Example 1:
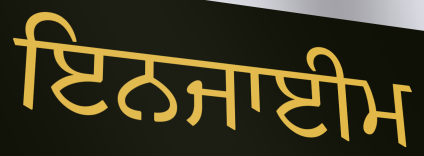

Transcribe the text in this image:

ਇਨਜਾਈਮ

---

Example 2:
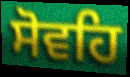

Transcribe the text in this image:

ਸੋਵਹਿ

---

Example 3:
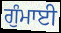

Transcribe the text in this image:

ਗੁੰਮਾਈ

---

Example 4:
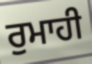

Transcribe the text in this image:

ਰੁਮਾਹੀ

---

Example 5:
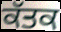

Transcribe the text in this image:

ਕੱਤਕ